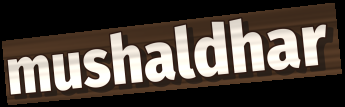
mushaldhar